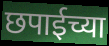
छपाईच्या